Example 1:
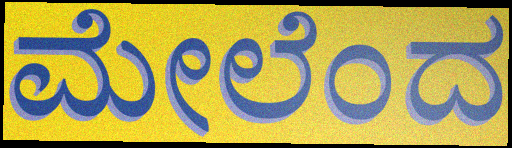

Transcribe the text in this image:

ಮೇಲೆಂದ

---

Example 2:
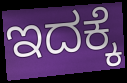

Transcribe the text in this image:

ಇದಕ್ಕೆ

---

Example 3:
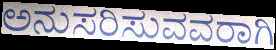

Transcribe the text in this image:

ಅನುಸರಿಸುವವರಾಗಿ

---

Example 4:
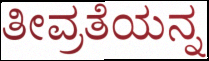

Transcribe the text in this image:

ತೀವ್ರತೆಯನ್ನ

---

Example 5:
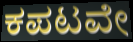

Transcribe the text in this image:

ಕಪಟವೇ